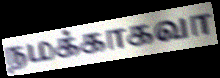
நமக்காகவா